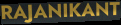
RAJANIKANT